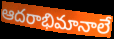
ఆదరాభిమానాలే